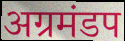
अग्रमंडप